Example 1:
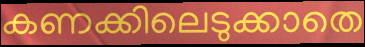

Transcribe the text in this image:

കണക്കിലെടുക്കാതെ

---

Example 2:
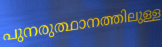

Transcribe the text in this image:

പുനരുത്ഥാനത്തിലുള്ള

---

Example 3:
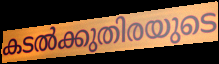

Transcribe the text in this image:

കടൽക്കുതിരയുടെ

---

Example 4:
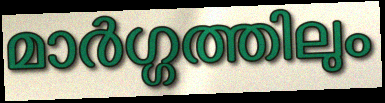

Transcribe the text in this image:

മാർഗ്ഗത്തിലും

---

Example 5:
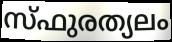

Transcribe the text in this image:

സ്ഫുരത്യലം